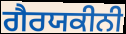
ਗੈਰਯਕੀਨੀ